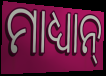
ମାଧ୍ୟାନ୍